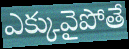
ఎక్కువైపోతే